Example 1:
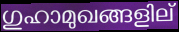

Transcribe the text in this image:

ഗുഹാമുഖങ്ങളില്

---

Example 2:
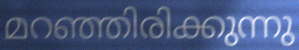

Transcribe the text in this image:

മറഞ്ഞിരിക്കുന്നു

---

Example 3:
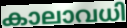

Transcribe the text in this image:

കാലാവധി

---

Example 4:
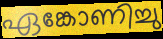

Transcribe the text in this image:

ഏങ്കോണിച്ചു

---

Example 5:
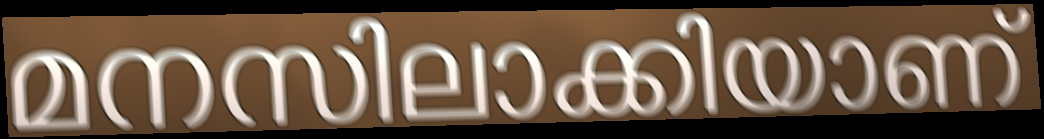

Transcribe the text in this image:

മനസിലാക്കിയാണ്